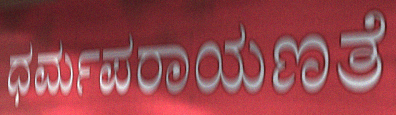
ಧರ್ಮಪರಾಯಣತೆ